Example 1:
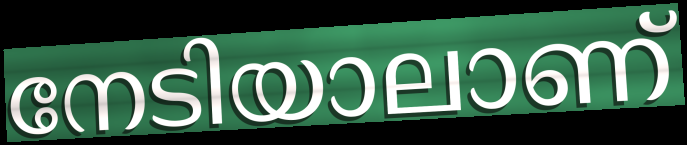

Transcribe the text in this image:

നേടിയാലാണ്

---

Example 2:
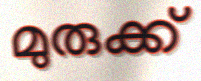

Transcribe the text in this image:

മുരുക്ക്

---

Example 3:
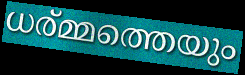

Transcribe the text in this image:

ധര്മ്മത്തെയും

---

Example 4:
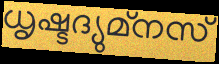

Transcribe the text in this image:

ധൃഷ്ടദ്യുമ്നസ്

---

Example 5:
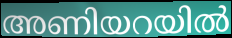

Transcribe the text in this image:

അണിയറയിൽ